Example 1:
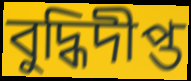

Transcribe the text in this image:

বুদ্ধিদীপ্ত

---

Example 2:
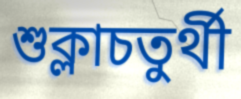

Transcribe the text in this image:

শুক্লাচতুৰ্থী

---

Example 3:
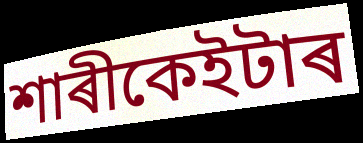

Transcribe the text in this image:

শাৰীকেইটাৰ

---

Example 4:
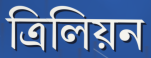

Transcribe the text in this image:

ত্ৰিলিয়ন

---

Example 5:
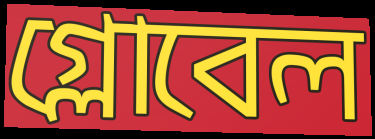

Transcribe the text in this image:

গ্লোবেল